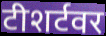
टीशर्टवर